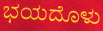
ಭಯದೊಳು